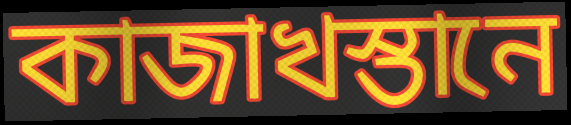
কাজাখস্তানে